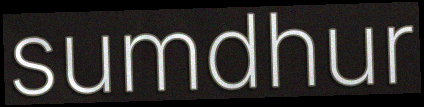
sumdhur